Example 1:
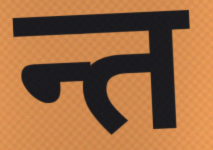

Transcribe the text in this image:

न्त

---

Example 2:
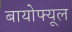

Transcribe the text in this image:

बायोफ्यूल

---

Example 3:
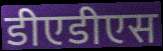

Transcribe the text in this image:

डीएडीएस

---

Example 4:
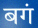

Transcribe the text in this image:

बगं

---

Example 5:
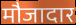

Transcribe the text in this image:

मौजादार